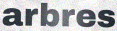
arbres